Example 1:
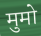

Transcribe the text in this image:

मुमो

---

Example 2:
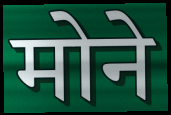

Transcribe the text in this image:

मोने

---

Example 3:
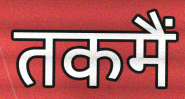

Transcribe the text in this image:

तकमैं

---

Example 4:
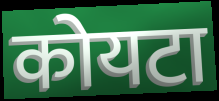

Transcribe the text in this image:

कोयटा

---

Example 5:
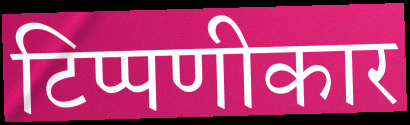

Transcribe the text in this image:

टिप्पणीकार